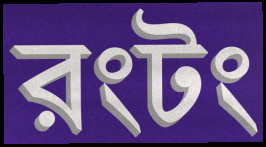
রংটং